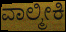
ವಾಲ್ಮೀಕಿ